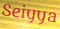
Seiyya